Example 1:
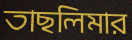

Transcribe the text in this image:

তাছলিমার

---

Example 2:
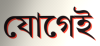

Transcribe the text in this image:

যোগেই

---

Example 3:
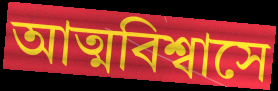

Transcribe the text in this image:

আত্মবিশ্বাসে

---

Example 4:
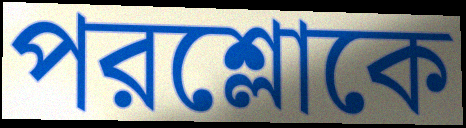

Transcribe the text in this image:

পরশ্লোকে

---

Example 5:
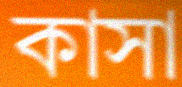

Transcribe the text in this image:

কাসা